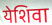
येशिवा